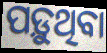
ପଡ଼ୁଥିବା